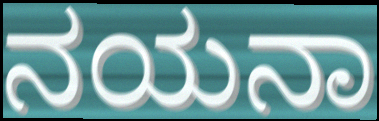
ನಯನಾ